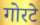
गोरटे